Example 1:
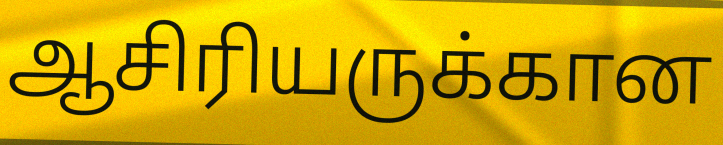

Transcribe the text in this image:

ஆசிரியருக்கான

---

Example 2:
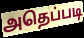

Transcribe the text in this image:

அதெப்படி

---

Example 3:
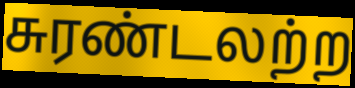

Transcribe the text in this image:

சுரண்டலற்ற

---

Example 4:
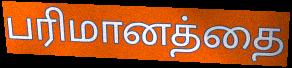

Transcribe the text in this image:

பரிமானத்தை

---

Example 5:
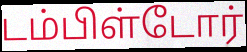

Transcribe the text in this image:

டம்பிள்டோர்